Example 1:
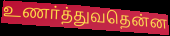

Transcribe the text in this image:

உணர்த்துவதென்ன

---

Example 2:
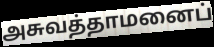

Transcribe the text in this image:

அசுவத்தாமனைப்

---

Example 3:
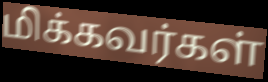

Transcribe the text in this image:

மிக்கவர்கள்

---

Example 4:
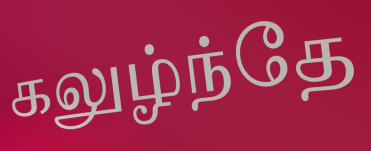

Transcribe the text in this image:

கலுழ்ந்தே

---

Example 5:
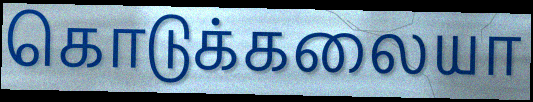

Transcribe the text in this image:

கொடுக்கலையா